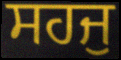
ਸਹਜੁ